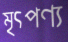
মৃৎপণ্য